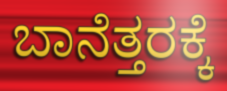
ಬಾನೆತ್ತರಕ್ಕೆ